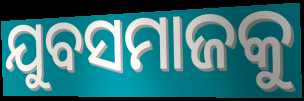
ଯୁବସମାଜକୁ